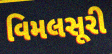
વિમલસૂરી